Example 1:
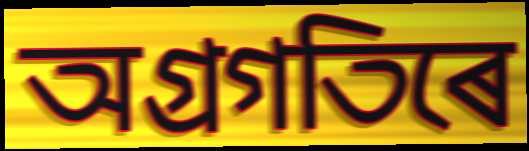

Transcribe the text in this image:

অগ্ৰগতিৰে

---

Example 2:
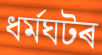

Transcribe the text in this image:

ধৰ্মঘটৰ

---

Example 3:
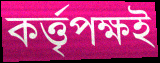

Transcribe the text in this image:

কৰ্ত্তৃপক্ষই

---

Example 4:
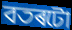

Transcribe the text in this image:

বতৰটো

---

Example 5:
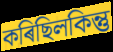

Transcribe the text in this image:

কৰিছিলকিন্তু